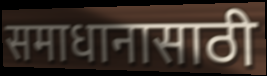
समाधानासाठी